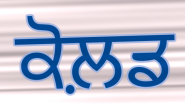
ਕੋਲ਼ਡ